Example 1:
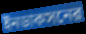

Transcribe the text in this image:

ইনডাকসনের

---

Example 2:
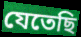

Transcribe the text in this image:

যেতেছি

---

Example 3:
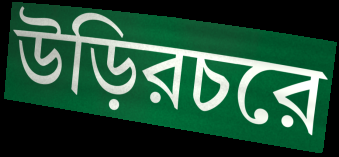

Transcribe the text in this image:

উড়িরচরে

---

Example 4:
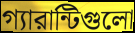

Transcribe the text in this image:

গ্যারান্টিগুলো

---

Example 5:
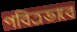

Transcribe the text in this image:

পবিত্রভাবে